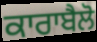
ਕਾਰਾਬੈਲੋ